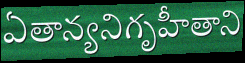
ఏతాన్యనిగృహీతాని